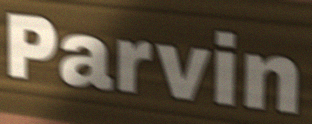
Parvin